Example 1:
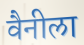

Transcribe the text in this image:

वैनीला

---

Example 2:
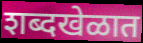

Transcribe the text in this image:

शब्दखेळात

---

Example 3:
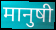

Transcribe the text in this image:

मानुषी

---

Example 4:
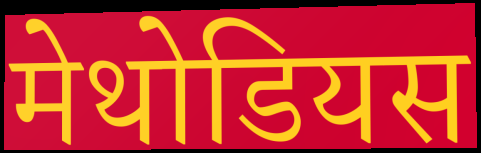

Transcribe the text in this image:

मेथोडियस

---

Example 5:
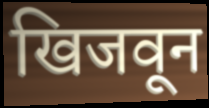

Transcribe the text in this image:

खिजवून